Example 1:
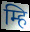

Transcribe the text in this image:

म्हि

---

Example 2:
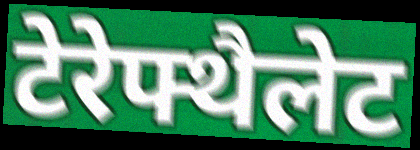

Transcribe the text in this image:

टेरेफ्थैलेट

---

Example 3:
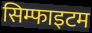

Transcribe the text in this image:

सिम्फाइटम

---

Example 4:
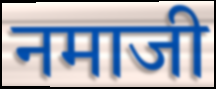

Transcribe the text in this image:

नमाजी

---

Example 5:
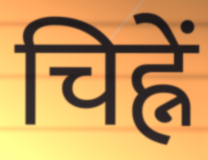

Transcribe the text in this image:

चिह्नें